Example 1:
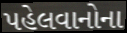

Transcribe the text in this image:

પહેલવાનોના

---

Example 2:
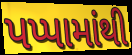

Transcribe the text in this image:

પપ્પામાંથી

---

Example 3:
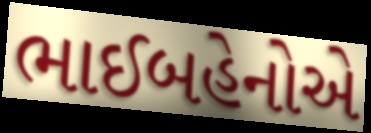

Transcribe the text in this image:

ભાઈબહેનોએ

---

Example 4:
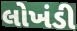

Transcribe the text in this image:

લોખંડી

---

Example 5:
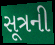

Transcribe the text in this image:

સૂત્રની